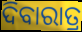
ଦିବାରାତ୍ର